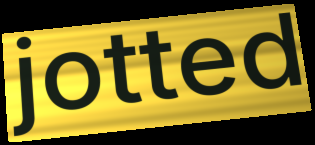
jotted